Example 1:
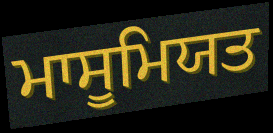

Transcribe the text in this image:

ਮਾਸੂਮਿਯਤ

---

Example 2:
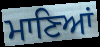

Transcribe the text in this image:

ਮਾਣਿਆਂ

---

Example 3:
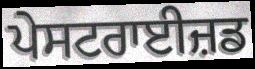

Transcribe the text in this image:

ਪੇਸਟਰਾਈਜ਼ਡ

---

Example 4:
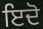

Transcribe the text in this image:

ਇਦੋ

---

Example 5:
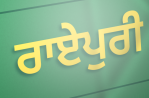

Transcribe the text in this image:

ਰਾਏਪੁਰੀ